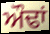
ਔਢਾਂ